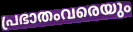
പ്രഭാതംവരെയും